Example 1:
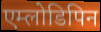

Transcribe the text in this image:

एम्लोडिपिन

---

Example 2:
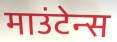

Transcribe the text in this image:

माउंटेन्स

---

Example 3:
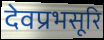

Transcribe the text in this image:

देवप्रभसूरि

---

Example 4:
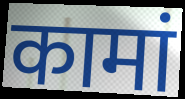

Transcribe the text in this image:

कामां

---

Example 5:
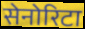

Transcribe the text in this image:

सेनोरिटा